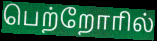
பெற்றோரில்